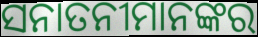
ସନାତନୀମାନଙ୍କର